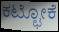
ಕಟ್ಟೋಕೆ